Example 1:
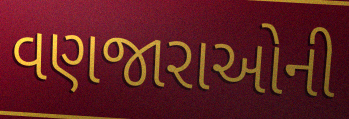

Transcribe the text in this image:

વણજારાઓની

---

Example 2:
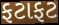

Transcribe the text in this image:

ફટાફટ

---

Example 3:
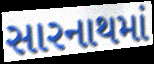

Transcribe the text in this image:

સારનાથમાં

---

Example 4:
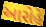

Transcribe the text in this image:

આરોહે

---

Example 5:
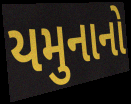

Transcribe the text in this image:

યમુનાનો